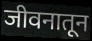
जीवनातून